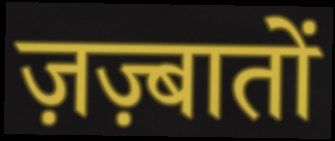
ज़ज़्बातों